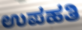
ಉಪಹತಿ